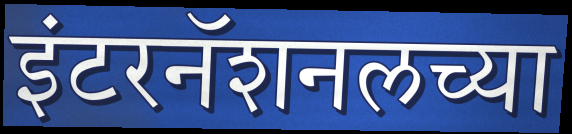
इंटरनॅशनलच्या